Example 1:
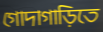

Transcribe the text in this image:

গোদাগাড়িতে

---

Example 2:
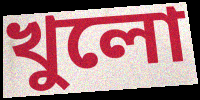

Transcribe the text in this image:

খুলো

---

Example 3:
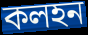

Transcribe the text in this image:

কলহন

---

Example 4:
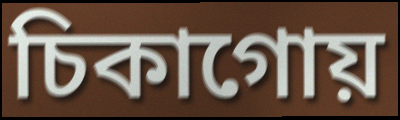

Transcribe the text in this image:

চিকাগোয়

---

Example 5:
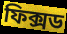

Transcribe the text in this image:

ফিক্সড